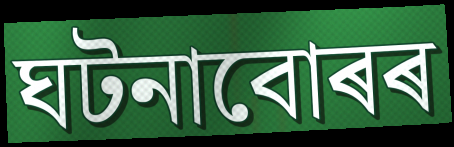
ঘটনাবোৰৰ